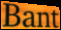
Bant